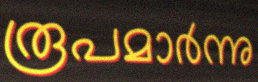
രൂപമാർന്നു